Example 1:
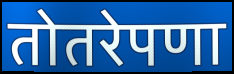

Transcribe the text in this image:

तोतरेपणा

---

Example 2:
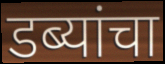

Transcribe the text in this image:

डब्यांचा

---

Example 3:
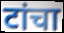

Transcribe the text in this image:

टांचा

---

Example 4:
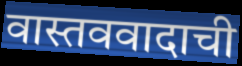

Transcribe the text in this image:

वास्तववादाची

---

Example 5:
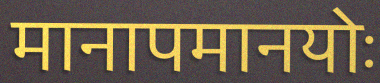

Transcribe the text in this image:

मानापमानयोः